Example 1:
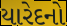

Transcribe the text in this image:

યારેદનો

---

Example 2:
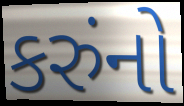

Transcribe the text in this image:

કરુંનો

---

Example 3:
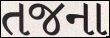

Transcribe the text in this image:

તજના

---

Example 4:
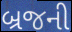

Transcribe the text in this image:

બ્રજની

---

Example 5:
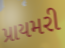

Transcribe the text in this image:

પ્રાયમરી